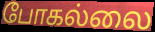
போகல்லை